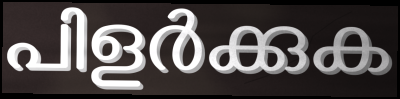
പിളർക്കുക